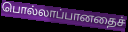
பொல்லாப்பானதைச்